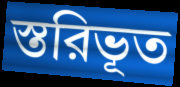
স্তরিভূত